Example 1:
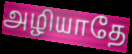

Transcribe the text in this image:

அழியாதே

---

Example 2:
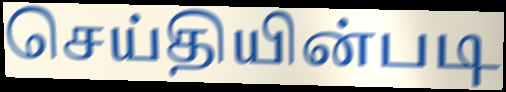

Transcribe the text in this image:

செய்தியின்படி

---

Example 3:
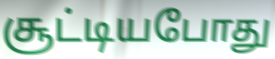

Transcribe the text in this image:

சூட்டியபோது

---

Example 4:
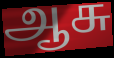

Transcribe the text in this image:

ஆசு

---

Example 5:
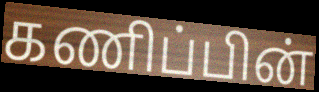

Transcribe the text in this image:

கணிப்பின்